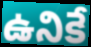
ఉనికే